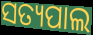
ସତ୍ୟପାଲ